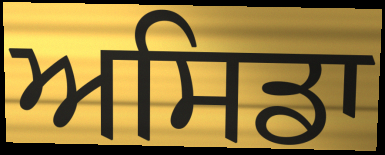
ਅਸਿਡਾ